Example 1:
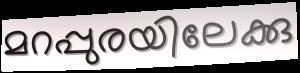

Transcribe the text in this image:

മറപ്പുരയിലേക്കു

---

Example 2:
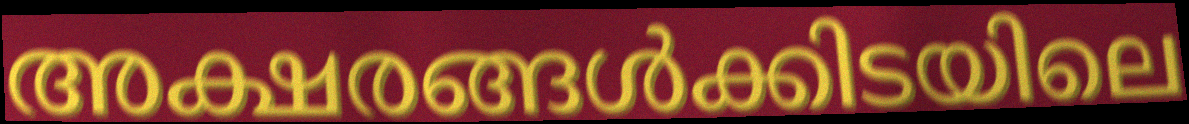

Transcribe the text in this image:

അക്ഷരങ്ങൾക്കിടയിലെ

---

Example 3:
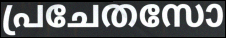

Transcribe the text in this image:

പ്രചേതസോ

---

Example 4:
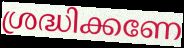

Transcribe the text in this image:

ശ്രദ്ധിക്കണേ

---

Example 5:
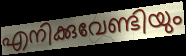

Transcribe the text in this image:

എനിക്കുവേണ്ടിയും